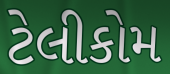
ટેલીકોમ